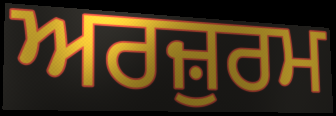
ਅਰਜ਼ੁਰਮ